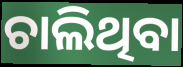
ଚାଲିଥିବା